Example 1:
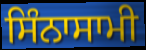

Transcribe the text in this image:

ਸਿੰਨਾਸਾਮੀ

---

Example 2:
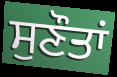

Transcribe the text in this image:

ਸੁਣੌਤਾਂ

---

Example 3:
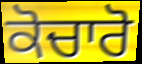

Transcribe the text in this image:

ਕੋਚਾਰੋ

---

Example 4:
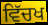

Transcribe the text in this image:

ਵਿੱਚਖ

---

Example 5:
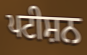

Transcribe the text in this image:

ਪਟੀਸ਼ਨ